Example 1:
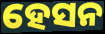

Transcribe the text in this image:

ହେସନ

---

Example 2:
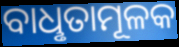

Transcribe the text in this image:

ବାଧୢତାମୂଳକ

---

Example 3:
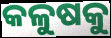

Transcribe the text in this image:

କଳୁଷକୁ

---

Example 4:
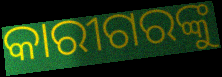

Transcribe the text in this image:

କାରୀଗରଙ୍କୁ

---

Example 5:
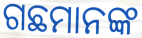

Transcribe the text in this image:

ଗଛମାନଙ୍କ